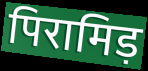
पिरामिड़